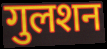
गुलशन